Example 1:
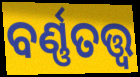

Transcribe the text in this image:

ବର୍ଣ୍ଣତତ୍ତ୍ଵ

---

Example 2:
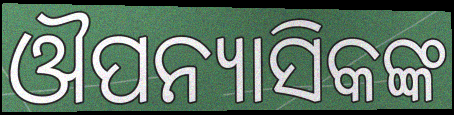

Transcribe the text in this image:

ଔପନ୍ୟାସିକଙ୍କ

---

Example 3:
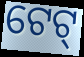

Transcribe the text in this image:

ଟେଟ୍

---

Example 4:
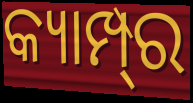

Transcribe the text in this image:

କ୍ୟାମ୍ପ୍‍ର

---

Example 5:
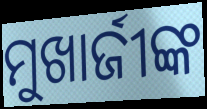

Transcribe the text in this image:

ମୁଖାର୍ଜୀଙ୍କ